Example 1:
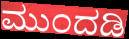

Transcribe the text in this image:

ಮುಂದಡಿ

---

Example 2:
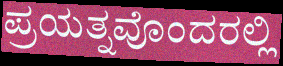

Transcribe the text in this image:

ಪ್ರಯತ್ನವೊಂದರಲ್ಲಿ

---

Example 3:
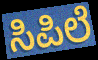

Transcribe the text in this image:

ಸಿಪಿಲೆ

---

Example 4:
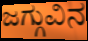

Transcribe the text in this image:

ಜಗ್ಗುವಿನ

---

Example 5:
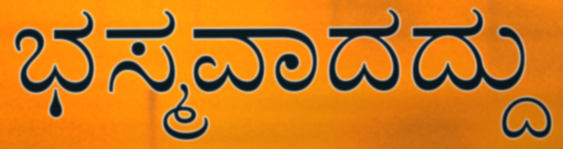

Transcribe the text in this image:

ಭಸ್ಮವಾದದ್ದು